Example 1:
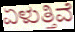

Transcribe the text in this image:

ಏಳುತ್ತಿವೆ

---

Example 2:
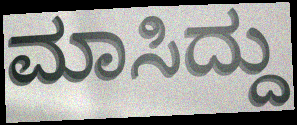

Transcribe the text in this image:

ಮಾಸಿದ್ದು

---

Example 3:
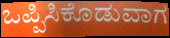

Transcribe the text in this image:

ಒಪ್ಪಿಸಿಕೊಡುವಾಗ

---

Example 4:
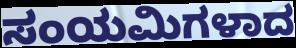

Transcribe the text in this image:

ಸಂಯಮಿಗಳಾದ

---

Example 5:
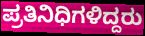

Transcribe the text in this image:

ಪ್ರತಿನಿಧಿಗಳಿದ್ದರು